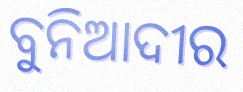
ବୁନିଆଦୀର